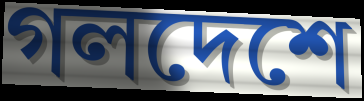
গলদেশে